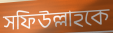
সফিউল্লাহকে